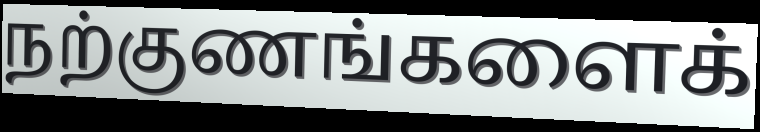
நற்குணங்களைக்